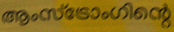
ആംസ്ട്രോംഗിന്റെ